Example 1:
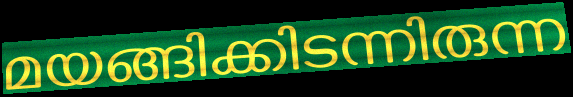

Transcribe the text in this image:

മയങ്ങിക്കിടന്നിരുന്ന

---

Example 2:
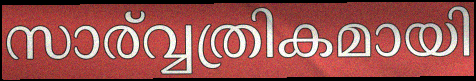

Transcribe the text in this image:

സാര്വ്വത്രികമായി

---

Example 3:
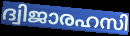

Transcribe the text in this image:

ദ്വിജാരഹസി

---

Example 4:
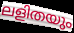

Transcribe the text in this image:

ലളിതയും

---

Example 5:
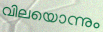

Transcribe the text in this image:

വിലയൊന്നും